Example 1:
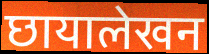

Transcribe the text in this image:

छायालेखन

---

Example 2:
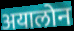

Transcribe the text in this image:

अयालोन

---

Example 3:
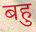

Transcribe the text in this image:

बहु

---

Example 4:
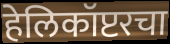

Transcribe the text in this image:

हेलिकॉप्टरचा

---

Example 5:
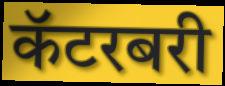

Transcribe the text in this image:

कॅटरबरी